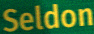
Seldon